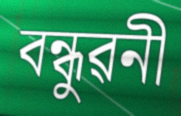
বন্ধুৱনী